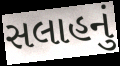
સલાહનું